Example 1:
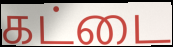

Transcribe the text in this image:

கட்டை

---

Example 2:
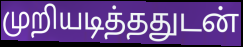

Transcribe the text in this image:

முறியடித்ததுடன்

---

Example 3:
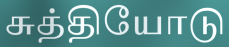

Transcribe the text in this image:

சுத்தியோடு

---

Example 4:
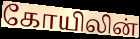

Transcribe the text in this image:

கோயிலின்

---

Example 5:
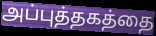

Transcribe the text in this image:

அப்புத்தகத்தை